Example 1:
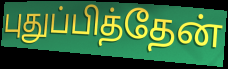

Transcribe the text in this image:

புதுப்பித்தேன்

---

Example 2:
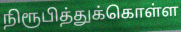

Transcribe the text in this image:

நிரூபித்துக்கொள்ள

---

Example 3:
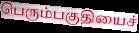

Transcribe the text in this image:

பெரும்பகுதியைச்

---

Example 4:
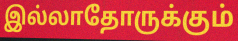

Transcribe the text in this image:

இல்லாதோருக்கும்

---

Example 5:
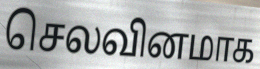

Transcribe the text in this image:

செலவினமாக